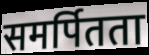
समर्पितता